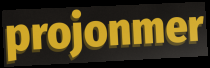
projonmer